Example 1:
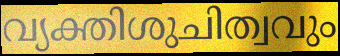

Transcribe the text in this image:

വ്യക്തിശുചിത്വവും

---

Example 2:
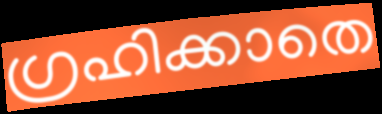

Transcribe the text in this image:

ഗ്രഹിക്കാതെ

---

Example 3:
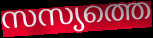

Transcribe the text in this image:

സസ്യത്തെ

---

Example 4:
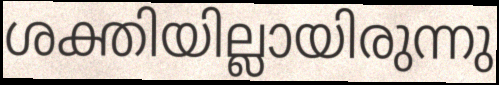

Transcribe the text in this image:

ശക്തിയില്ലായിരുന്നു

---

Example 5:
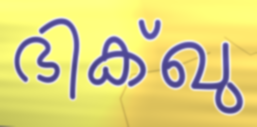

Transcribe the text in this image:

ഭിക്ഖു